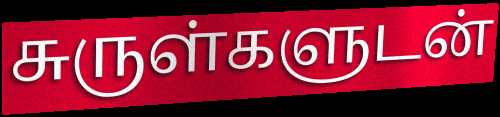
சுருள்களுடன்